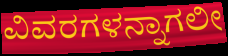
ವಿವರಗಳನ್ನಾಗಲೀ